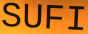
SUFI